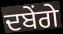
ਦਬੇਂਗੇ